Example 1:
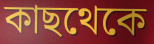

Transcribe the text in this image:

কাছথেকে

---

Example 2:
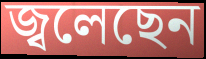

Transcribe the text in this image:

জ্বলেছেন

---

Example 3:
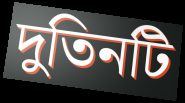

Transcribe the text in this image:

দুতিনটি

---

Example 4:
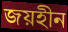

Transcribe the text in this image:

জয়হীন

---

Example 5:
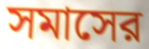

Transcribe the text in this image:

সমাসের